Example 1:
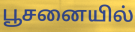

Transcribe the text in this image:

பூசனையில்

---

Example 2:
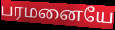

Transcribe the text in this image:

பரமனையே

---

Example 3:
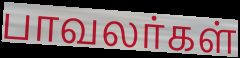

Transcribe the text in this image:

பாவலர்கள்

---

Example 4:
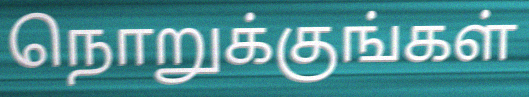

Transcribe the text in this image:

நொறுக்குங்கள்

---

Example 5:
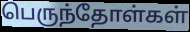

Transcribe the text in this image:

பெருந்தோள்கள்